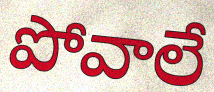
పోవాలే